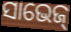
ସାଭେଜ୍